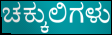
ಚಕ್ಕುಲಿಗಳು